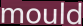
mould